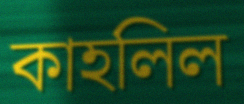
কাহলিল